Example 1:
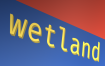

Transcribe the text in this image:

wetland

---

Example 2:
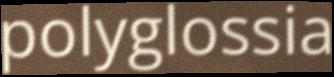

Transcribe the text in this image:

polyglossia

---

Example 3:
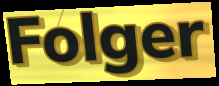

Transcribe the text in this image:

Folger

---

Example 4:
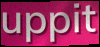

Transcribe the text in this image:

uppit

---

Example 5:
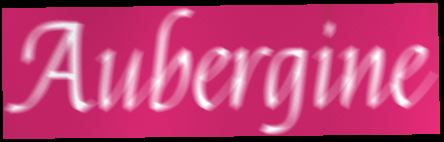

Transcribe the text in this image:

Aubergine